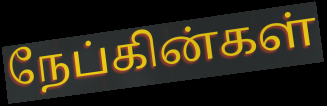
நேப்கின்கள்